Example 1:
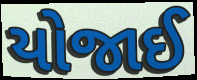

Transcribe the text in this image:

યોજાઈ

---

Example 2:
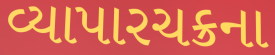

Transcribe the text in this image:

વ્યાપારચક્રના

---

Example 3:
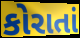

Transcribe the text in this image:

કોરાતાં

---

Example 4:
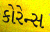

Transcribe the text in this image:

કોરેન્સ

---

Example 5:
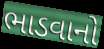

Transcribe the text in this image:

ભાડવાનો